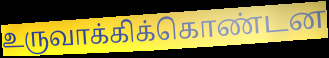
உருவாக்கிக்கொண்டன